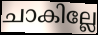
ചാകില്ലേ